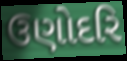
ઉણોદરિ